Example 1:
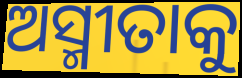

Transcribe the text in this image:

ଅସ୍ମୀତାକୁ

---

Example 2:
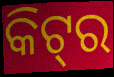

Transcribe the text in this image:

କିଟ୍‌ର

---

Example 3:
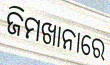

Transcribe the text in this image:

ଜିମଖାନାରେ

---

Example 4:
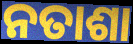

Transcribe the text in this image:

ନତାଶା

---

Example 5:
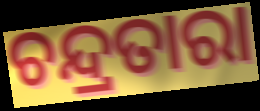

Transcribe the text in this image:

ଚନ୍ଦ୍ରତାରା